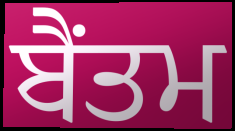
ਬੈਂਤਮ